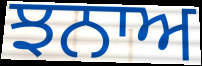
ਝਨਾਅ